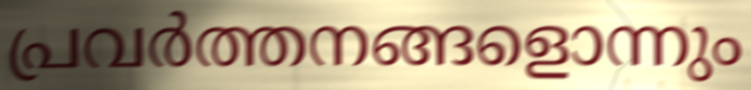
പ്രവർത്തനങ്ങളൊന്നും